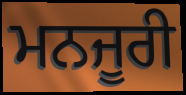
ਮਨਜੂਰੀ